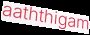
aaththigam